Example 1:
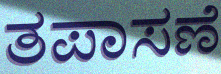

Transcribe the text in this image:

ತಪಾಸಣೆ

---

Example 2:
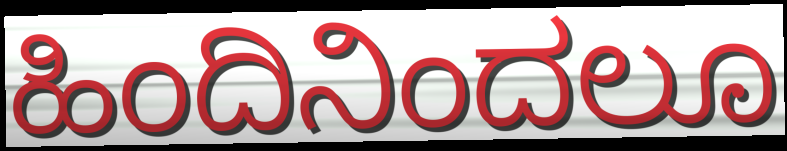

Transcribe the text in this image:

ಹಿಂದಿನಿಂದಲೂ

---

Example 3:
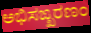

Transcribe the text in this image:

ಅಭಿಸಙ್ಖರಣಂ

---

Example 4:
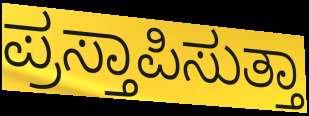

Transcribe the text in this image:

ಪ್ರಸ್ತಾಪಿಸುತ್ತಾ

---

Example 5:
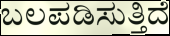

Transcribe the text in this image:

ಬಲಪಡಿಸುತ್ತಿದೆ